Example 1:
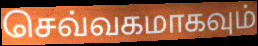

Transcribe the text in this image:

செவ்வகமாகவும்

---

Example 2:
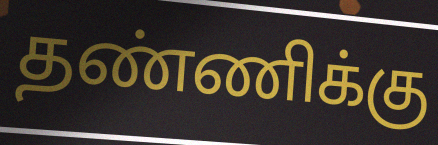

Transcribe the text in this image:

தண்ணிக்கு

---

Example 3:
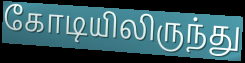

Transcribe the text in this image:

கோடியிலிருந்து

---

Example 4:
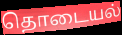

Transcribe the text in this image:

தொடையல்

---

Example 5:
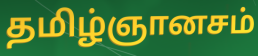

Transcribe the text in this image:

தமிழ்ஞானசம்